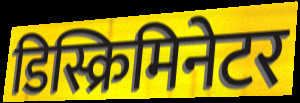
डिस्क्रिमिनेटर